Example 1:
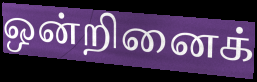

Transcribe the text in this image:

ஒன்றினைக்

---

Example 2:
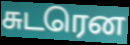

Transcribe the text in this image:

சுடரென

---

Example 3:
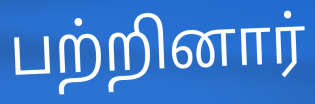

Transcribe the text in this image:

பற்றினார்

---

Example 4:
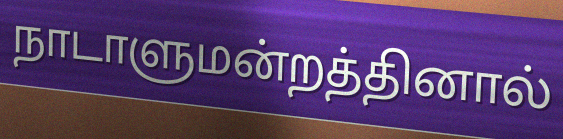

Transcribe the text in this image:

நாடாளுமன்றத்தினால்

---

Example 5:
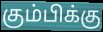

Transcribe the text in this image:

கும்பிக்கு